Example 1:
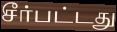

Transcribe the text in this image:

சீர்பட்டது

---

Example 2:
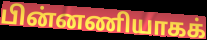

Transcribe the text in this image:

பின்னணியாகக்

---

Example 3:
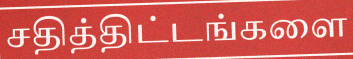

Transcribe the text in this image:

சதித்திட்டங்களை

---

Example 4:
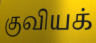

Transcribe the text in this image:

குவியக்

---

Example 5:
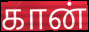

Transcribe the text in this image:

கான்